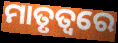
ମାତୃତ୍ୱରେ